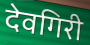
देवगिरी